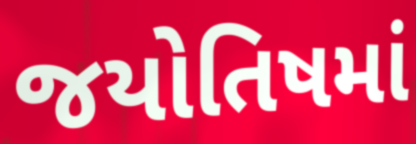
જયોતિષમાં